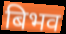
बिभव